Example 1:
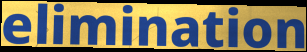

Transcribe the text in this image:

elimination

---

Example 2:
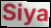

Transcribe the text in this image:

Siya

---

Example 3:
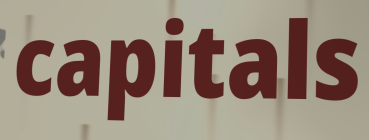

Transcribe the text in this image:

capitals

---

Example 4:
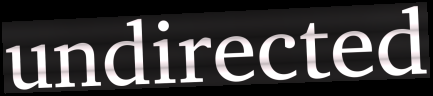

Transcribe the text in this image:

undirected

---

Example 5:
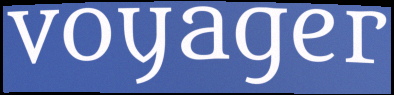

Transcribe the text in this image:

voyager